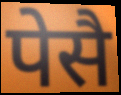
पेसै